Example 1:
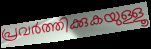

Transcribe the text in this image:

പ്രവർത്തിക്കുകയുള്ളൂ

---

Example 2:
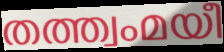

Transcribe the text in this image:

തത്ത്വംമയീ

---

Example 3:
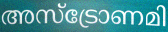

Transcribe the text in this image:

അസ്ട്രോണമി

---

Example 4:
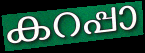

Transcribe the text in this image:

കറപ്പാ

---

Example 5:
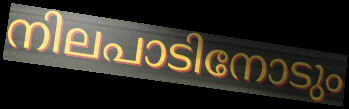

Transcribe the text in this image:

നിലപാടിനോടും